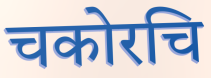
चकोरचि